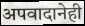
अपवादानेही